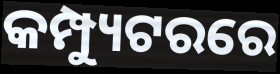
କମ୍ପ୍ୟୁଟରରେ